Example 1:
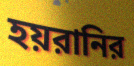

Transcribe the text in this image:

হয়রানির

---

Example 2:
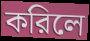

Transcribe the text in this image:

করিলে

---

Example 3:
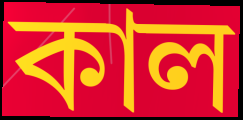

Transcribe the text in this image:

কাল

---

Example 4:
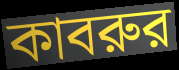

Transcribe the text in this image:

কাবরুর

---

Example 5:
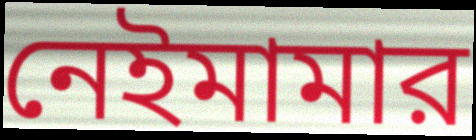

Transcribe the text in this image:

নেইমামার